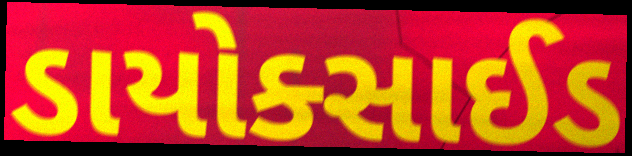
ડાયોક્સાઈડ